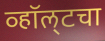
व्हॉल्टचा